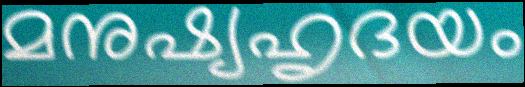
മനുഷ്യഹൃദയം